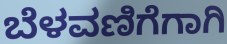
ಬೆಳವಣಿಗೆಗಾಗಿ